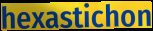
hexastichon